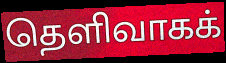
தெளிவாகக்